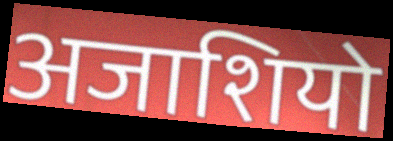
अजाशियो